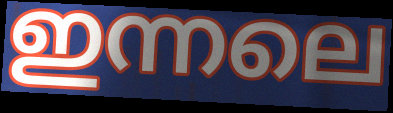
ഇന്നലെ